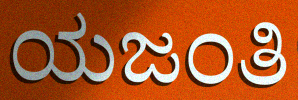
ಯಜಂತಿ